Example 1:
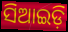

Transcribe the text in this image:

ସିଆଇଡ଼ି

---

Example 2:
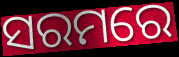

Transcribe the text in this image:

ସରମରେ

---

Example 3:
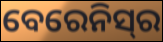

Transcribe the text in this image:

ବେରେନିସ୍‌ର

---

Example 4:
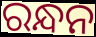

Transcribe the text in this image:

ରନ୍ଧନ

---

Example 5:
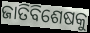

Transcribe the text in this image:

ଜାତିବିଶେଷକୁ